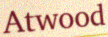
Atwood